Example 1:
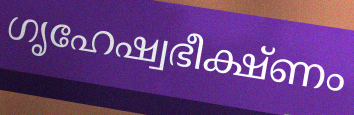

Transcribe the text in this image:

ഗൃഹേഷ്വഭീക്ഷ്ണം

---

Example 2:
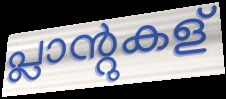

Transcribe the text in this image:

പ്ലാന്റുകള്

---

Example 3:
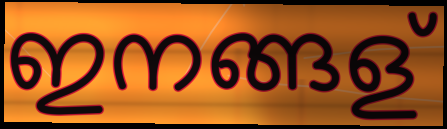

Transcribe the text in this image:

ഇനങ്ങള്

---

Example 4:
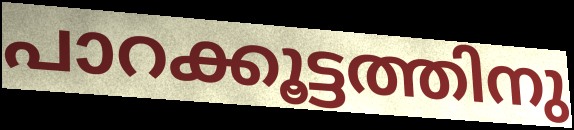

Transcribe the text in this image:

പാറക്കൂട്ടത്തിനു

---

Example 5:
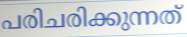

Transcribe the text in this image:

പരിചരിക്കുന്നത്